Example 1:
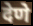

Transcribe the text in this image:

देणे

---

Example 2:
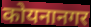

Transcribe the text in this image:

कोयनानगर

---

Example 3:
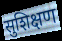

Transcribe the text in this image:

सुशिक्षण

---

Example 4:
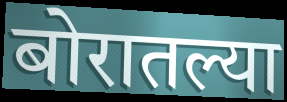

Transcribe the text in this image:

बोरातल्या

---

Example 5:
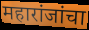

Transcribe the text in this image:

महारांजांचा